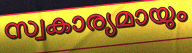
സ്വകാര്യമായും